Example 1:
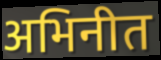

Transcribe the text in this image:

अभिनीत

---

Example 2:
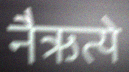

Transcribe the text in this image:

नैऋत्ये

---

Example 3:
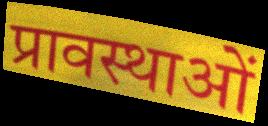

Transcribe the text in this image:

प्रावस्थाओं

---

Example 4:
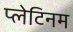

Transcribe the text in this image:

प्लेटिनम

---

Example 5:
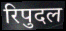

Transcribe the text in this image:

रिपुदल